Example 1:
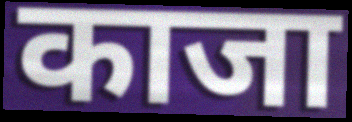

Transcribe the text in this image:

काजा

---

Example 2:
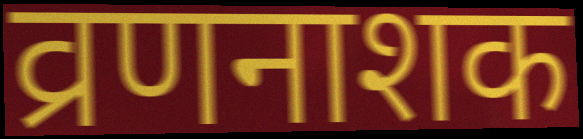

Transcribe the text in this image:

व्रणनाशक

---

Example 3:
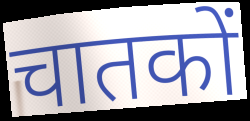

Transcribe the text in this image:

चातकों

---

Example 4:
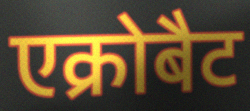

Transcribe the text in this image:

एक्रोबैट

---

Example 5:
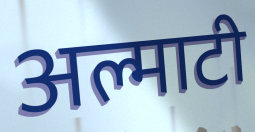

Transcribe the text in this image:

अल्माटी